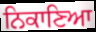
ਨਿਕਾਣਿਆ